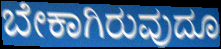
ಬೇಕಾಗಿರುವುದೂ